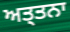
ਅਤ੍ਤਨਾ